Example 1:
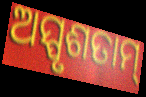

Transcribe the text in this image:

ଅସ୍ପୃଶତାମ୍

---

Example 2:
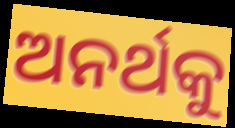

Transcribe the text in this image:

ଅନର୍ଥକୁ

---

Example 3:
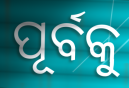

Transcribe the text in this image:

ପୂର୍ବକୁ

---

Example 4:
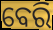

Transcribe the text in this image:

ବେରି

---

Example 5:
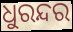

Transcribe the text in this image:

ଧୁରନ୍ଦର